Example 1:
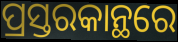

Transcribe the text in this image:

ପ୍ରସ୍ତରକାନ୍ଥରେ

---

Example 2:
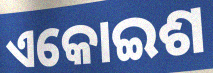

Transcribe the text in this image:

ଏକୋଇଶ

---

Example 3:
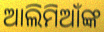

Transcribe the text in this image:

ଆଲିମିଆଁଙ୍କ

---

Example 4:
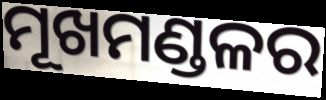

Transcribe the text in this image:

ମୂଖମଣ୍ଡଳର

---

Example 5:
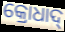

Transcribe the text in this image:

କ୍ରୋଧାଦ୍